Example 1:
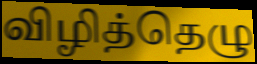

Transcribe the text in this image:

விழித்தெழு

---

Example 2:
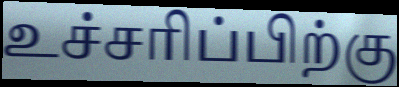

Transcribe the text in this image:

உச்சரிப்பிற்கு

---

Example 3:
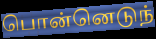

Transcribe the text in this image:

பொன்னெடுந்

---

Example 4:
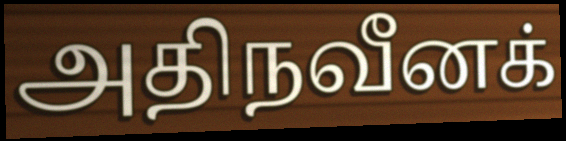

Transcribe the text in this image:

அதிநவீனக்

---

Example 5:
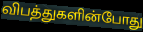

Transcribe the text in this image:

விபத்துகளின்போது